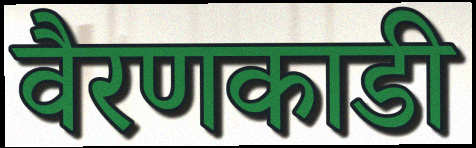
वैरणकाडी